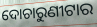
ଦୋଚାରୁଣୀଟାର